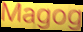
Magog